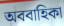
অববাহিকা